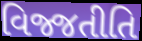
વિજ્જતીતિ